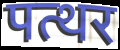
पत्थर